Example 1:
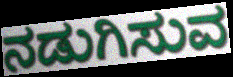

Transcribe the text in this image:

ನಡುಗಿಸುವ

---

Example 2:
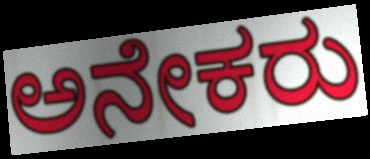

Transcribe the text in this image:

ಅನೇಕರು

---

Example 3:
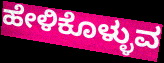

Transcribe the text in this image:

ಹೇಳಿಕೊಳ್ಳುವ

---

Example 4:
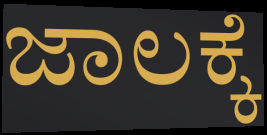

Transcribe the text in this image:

ಜಾಲಕ್ಕೆ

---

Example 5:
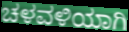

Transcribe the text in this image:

ಚಳವಳಿಯಾಗಿ